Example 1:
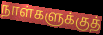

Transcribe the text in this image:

நாள்களுக்குத்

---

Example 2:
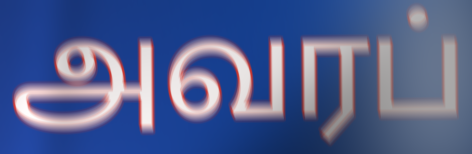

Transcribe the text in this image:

அவரப்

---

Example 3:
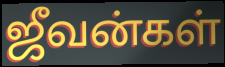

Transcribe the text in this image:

ஜீவன்கள்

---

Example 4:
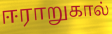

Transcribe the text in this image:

ஈராறுகால்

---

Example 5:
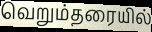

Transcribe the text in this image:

வெறும்தரையில்